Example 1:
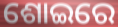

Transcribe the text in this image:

ଶୋଇରେ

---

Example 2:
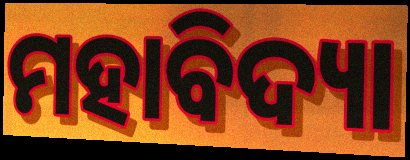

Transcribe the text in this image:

ମହାବିଦ୍ୟା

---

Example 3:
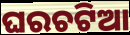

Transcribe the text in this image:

ଘରଚଟିଆ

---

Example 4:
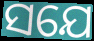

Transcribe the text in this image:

ସଯେ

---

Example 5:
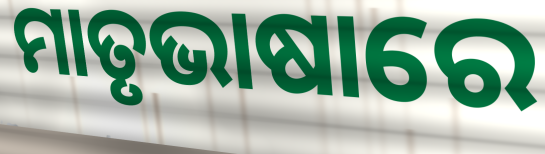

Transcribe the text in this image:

ମାତୃଭାଷାରେ